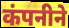
कंपनीने